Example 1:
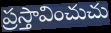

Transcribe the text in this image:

ప్రస్తావించుచు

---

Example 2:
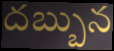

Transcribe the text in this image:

దబ్బున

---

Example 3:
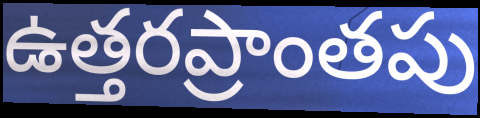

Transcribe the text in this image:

ఉత్తరప్రాంతపు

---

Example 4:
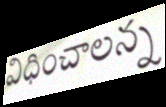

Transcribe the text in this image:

విధించాలన్న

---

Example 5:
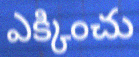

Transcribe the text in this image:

ఎక్కించు